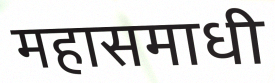
महासमाधी